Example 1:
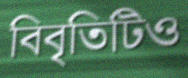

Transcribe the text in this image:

বিবৃতিটিও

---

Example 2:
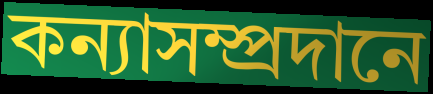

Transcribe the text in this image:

কন্যাসম্প্রদানে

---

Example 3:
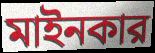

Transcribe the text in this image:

মাইনকার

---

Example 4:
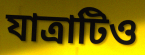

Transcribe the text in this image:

যাত্রাটিও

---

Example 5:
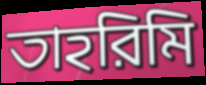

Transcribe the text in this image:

তাহরিমি